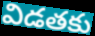
విడతకు